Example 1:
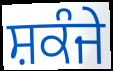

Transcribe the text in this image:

ਸ਼ਕੰਜੇ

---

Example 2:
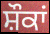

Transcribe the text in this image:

ਸ਼ੌਕਾਂ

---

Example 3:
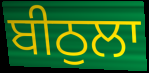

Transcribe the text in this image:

ਬੀਠੁਲਾ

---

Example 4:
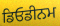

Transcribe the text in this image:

ਡਿਓਡੀਨਮ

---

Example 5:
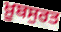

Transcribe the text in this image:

ਖ਼ੂਬਸੁਰਤ